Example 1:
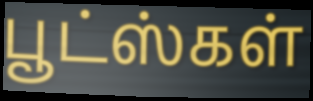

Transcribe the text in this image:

பூட்ஸ்கள்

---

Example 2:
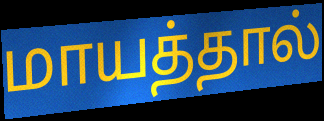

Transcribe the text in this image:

மாயத்தால்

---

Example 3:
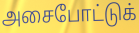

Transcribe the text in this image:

அசைபோட்டுக்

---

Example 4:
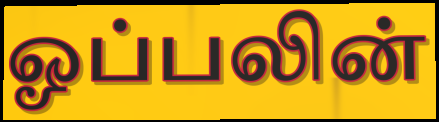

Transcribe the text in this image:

ஓப்பலின்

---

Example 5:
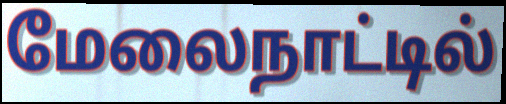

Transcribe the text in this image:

மேலைநாட்டில்